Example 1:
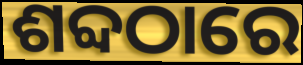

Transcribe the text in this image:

ଶବ୍ଦଠାରେ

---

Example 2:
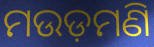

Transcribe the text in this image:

ମଉଡ଼ମଣି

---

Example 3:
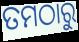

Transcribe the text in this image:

ତମଠାରୁ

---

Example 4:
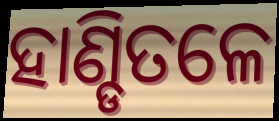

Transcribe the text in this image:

ହାଣ୍ଡିତଳେ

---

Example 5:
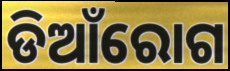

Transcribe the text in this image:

ଡିଆଁରୋଗ